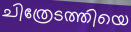
ചിത്രേടത്തിയെ